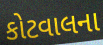
કોટવાલના